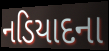
નડિયાદના